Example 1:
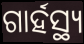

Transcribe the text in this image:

ଗାର୍ହସ୍ଥ୍ୟ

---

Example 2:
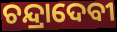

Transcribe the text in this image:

ଚନ୍ଦ୍ରାଦେବୀ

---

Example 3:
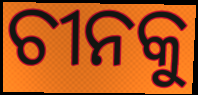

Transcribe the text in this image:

ଚୀନକୁ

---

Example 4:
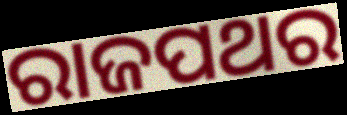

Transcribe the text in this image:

ରାଜପଥର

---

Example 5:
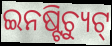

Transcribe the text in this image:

ଇନଷ୍ଟିଚ୍ୟୁଟ୍